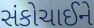
સંકોચાઈને